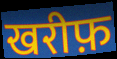
खरीफ़